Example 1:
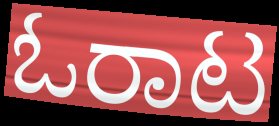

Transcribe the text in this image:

ಓರಾಟ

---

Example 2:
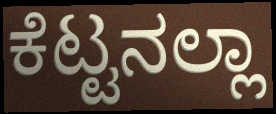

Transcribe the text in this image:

ಕೆಟ್ಟನಲ್ಲಾ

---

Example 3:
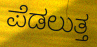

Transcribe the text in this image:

ಪೆಡಲುತ್ತ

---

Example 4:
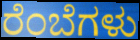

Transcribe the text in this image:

ರೆಂಬೆಗಳು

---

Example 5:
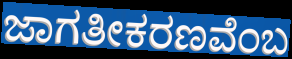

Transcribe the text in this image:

ಜಾಗತೀಕರಣವೆಂಬ